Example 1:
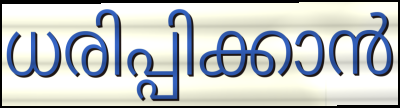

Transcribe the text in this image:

ധരിപ്പിക്കാൻ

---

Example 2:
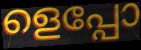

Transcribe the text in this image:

ളെപ്പോ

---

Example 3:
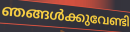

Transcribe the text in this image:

ഞങ്ങൾക്കുവേണ്ടി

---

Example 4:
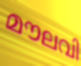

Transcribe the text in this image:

മൗലവി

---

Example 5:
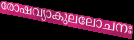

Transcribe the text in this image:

രോഷവ്യാകുലലോചനഃ